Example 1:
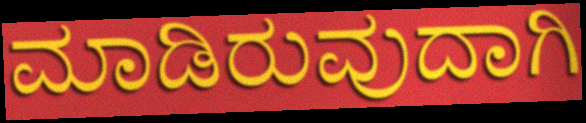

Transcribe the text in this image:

ಮಾಡಿರುವುದಾಗಿ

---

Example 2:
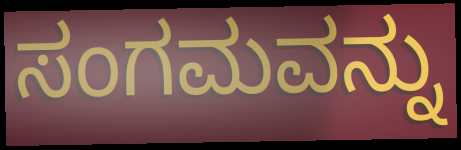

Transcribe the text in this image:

ಸಂಗಮವನ್ನು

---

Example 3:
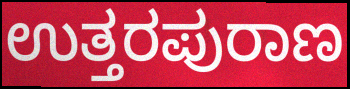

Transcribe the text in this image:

ಉತ್ತರಪುರಾಣ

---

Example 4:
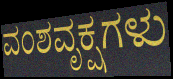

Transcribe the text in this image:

ವಂಶವೃಕ್ಷಗಳು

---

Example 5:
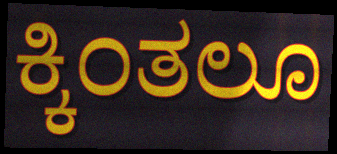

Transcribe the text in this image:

ಕ್ಕಿಂತಲೂ